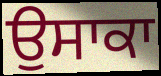
ਉਸਾਕਾ